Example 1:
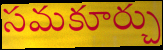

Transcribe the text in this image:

సమకూర్చు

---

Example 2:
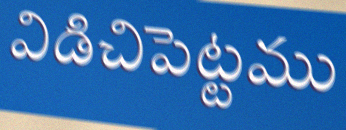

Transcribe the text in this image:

విడిచిపెట్టము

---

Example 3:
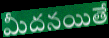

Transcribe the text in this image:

మీదనయితే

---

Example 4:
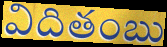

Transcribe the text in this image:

విదితంబు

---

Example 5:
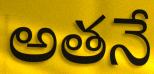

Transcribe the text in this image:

అతనే